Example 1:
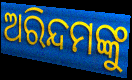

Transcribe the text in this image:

ଅରିନ୍ଦମଙ୍କୁ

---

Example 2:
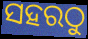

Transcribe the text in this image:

ସହରଠୁ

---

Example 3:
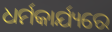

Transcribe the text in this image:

ଧର୍ମକାର୍ଯ୍ୟରେ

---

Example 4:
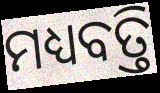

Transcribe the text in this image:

ମଧ୍ୟବତ୍ତି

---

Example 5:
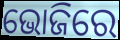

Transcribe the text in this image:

ଭୋଜିରେ